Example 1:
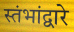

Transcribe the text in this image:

स्तंभांद्वारे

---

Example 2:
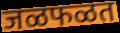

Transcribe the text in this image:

जळफळत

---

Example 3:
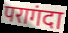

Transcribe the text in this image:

परागंदा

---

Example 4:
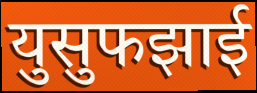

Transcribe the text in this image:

युसुफझाई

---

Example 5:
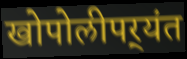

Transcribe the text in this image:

खोपोलीपर्यंत